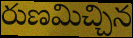
రుణమిచ్చిన